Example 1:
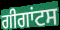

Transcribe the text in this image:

ਗੀਗਾਂਟਸ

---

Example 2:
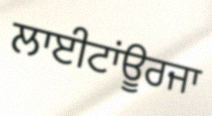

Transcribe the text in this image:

ਲਾਈਟਾਂਊਰਜਾ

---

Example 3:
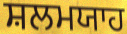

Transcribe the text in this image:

ਸ਼ਲਮਯਾਹ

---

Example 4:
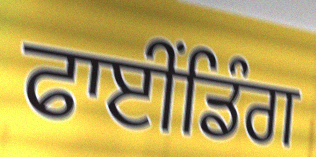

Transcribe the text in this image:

ਫਾਈਂਡਿੰਗ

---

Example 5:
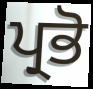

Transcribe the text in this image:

ਪ੍ਰਭੋ